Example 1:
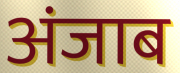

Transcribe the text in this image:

अंजाब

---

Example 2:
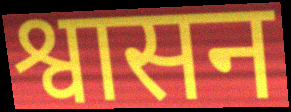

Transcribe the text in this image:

श्वासन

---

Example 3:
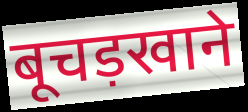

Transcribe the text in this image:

बूचड़खाने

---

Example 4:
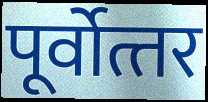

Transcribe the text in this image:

पूर्वोत्‍तर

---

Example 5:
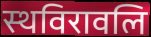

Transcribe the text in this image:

स्थविरावलि